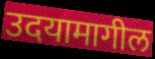
उदयामागील